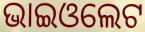
ଭାଇଓଲେଟ